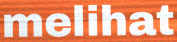
melihat